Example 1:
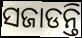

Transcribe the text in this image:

ସଜାଡନ୍ତି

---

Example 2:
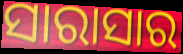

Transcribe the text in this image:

ସାରାସାର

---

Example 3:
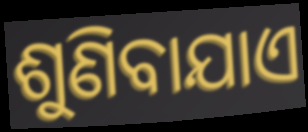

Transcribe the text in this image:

ଶୁଣିବାଯାଏ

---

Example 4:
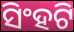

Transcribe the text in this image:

ସିଂହଟି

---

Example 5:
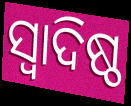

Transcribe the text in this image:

ସ୍ୱାଦିଷ୍ଠ